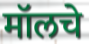
मॉलचे